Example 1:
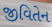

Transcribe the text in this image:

જીવિતેન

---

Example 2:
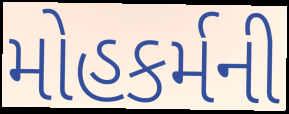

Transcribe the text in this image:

મોહકર્મની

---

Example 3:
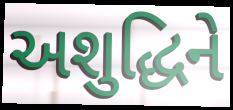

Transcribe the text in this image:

અશુદ્ધિને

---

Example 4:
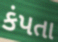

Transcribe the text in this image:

કંપતા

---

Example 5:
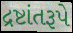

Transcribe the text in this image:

દ્રષ્ટાંતરૂપે